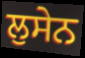
ਲੁਸੇਨ